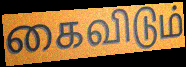
கைவிடும்